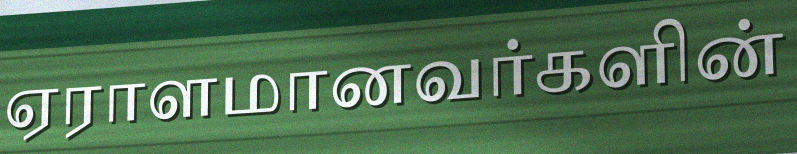
ஏராளமானவர்களின்